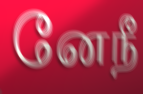
னேநீ